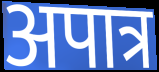
अपात्र